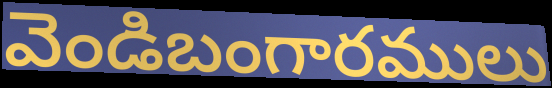
వెండిబంగారములు